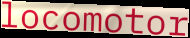
locomotor